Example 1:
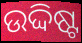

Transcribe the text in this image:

ଉଦ୍ଦିଷ୍ଟ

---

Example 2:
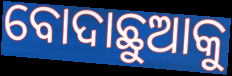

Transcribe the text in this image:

ବୋଦାଛୁଆକୁ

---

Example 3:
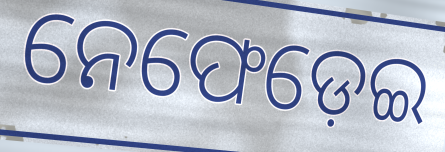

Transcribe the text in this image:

ନେଫେଡ଼େଇ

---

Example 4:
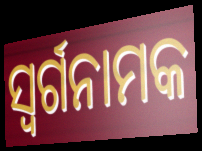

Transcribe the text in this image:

ସ୍ଵର୍ଗନାମକ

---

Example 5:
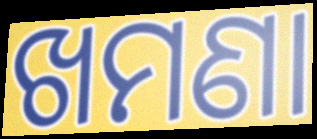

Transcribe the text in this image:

ଖମଣା